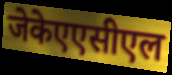
जेकेएएसीएल